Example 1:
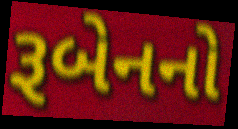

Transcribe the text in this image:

રૂબેનનો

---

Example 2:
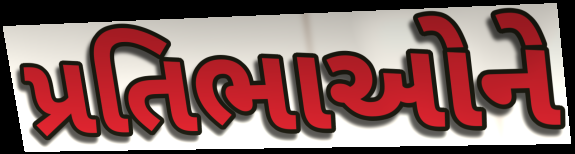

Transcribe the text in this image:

પ્રતિભાઓને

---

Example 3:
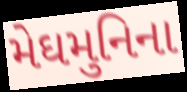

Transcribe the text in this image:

મેઘમુનિના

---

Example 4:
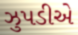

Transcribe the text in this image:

ઝુપડીએ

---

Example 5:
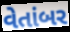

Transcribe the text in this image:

વેતાંબર